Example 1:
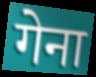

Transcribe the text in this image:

गेना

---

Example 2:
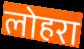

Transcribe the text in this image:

लोहरा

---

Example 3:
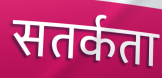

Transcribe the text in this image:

सतर्कता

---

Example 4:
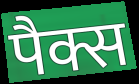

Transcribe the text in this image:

पैक्स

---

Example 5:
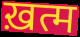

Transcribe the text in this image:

ख़त्म